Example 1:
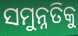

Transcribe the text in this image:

ସମୁନ୍ନତିକୁ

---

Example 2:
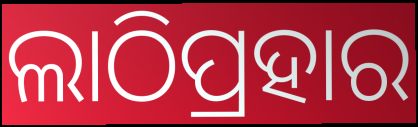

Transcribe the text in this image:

ଲାଠିପ୍ରହାର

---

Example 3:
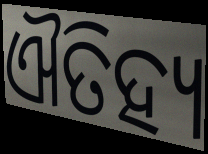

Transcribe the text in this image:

ଐତିହ୍ଯ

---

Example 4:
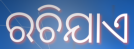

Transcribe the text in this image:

ରଚିଯାଏ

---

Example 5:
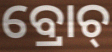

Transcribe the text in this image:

ବ୍ରୋଚ୍